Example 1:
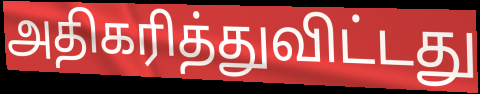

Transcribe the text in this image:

அதிகரித்துவிட்டது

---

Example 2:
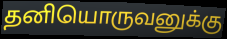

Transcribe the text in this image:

தனியொருவனுக்கு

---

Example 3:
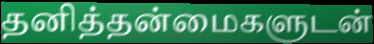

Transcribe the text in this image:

தனித்தன்மைகளுடன்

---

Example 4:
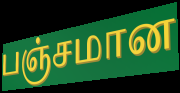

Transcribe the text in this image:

பஞ்சமான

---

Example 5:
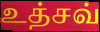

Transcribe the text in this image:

உத்சவ்